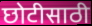
छोटीसाठी